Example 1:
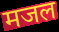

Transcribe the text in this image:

मजल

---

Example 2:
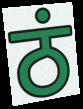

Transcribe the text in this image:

ठं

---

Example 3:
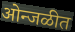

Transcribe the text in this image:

ओन्जळीत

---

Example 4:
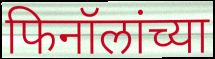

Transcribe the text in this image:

फिनॉलांच्या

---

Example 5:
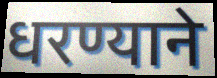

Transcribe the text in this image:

धरण्याने